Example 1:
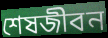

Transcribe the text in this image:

শেষজীবন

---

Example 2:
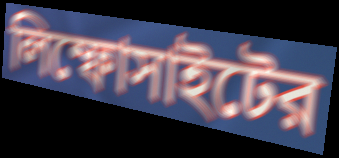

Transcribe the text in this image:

লিম্ফোসাইটের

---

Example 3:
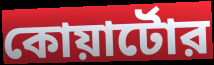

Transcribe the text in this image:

কোয়ার্টোর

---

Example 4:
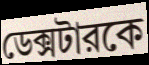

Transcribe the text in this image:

ডেক্সটারকে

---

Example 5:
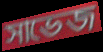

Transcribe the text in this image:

সাভেজ